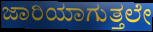
ಜಾರಿಯಾಗುತ್ತಲೇ